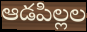
ఆడపిల్లల